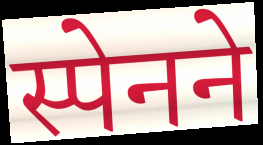
स्पेनने